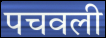
पचवली